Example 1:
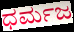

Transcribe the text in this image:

ಧರ್ಮಜ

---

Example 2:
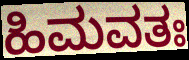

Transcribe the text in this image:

ಹಿಮವತಃ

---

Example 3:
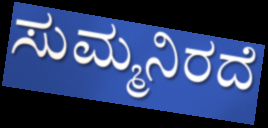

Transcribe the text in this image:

ಸುಮ್ಮನಿರದೆ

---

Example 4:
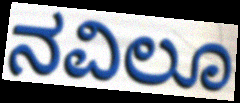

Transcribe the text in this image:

ನವಿಲೂ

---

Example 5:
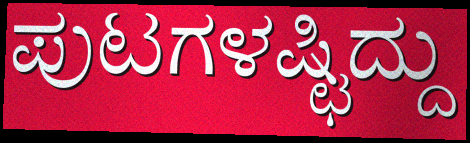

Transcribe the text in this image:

ಪುಟಗಳಷ್ಟಿದ್ದು